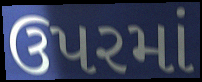
ઉપરમાં